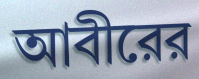
আবীরের